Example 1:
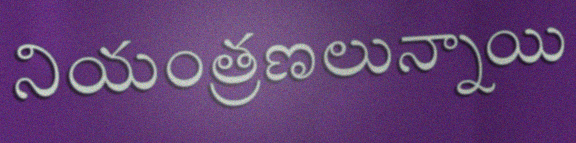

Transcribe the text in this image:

నియంత్రణలున్నాయి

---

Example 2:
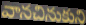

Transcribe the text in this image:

వానచినుకుని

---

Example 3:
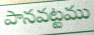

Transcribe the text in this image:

పానవట్టము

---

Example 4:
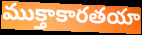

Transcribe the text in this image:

ముక్తాకారతయా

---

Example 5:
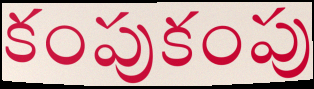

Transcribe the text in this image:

కంపుకంపు